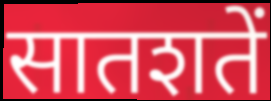
सातशतें